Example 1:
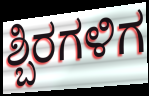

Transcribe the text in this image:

ಶ್ಬಿರಗಳಿಗ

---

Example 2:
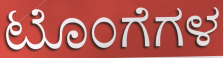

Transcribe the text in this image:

ಟೊಂಗೆಗಳ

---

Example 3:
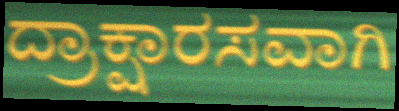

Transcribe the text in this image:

ದ್ರಾಕ್ಷಾರಸವಾಗಿ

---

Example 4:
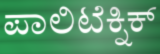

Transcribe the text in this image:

ಪಾಲಿಟೆಕ್ನಿಕ್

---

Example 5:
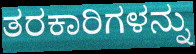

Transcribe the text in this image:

ತರಕಾರಿಗಳನ್ನು